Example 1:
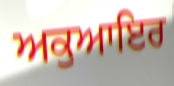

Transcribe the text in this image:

ਅਕੁਆਇਰ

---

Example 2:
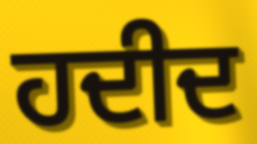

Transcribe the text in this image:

ਹਦੀਦ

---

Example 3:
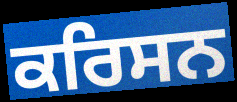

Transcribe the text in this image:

ਕਰਿਸਨ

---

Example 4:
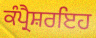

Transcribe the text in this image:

ਕੰਪ੍ਰੈਸ਼ਰਇਹ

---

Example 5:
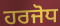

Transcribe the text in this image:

ਹਰਜੋਧ